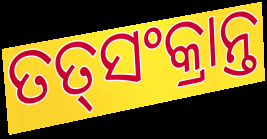
ତତ୍‌ସଂକ୍ରାନ୍ତ